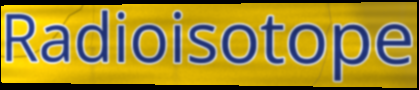
Radioisotope